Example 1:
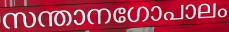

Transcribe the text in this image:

സന്താനഗോപാലം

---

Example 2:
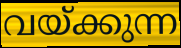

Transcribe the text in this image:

വയ്ക്കുന്ന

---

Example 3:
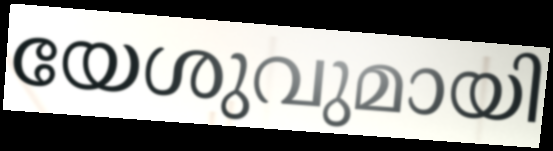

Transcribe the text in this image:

യേശുവുമായി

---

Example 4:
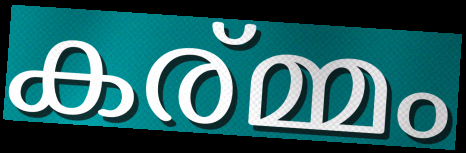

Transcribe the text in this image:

കര്മ്മം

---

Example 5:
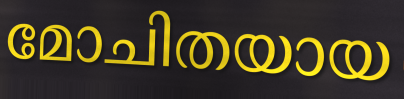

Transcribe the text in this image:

മോചിതയായ